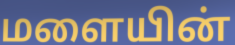
மளையின்